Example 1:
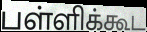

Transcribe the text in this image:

பள்ளிக்கூட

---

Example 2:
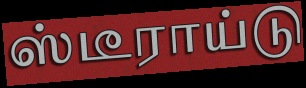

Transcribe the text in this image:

ஸ்டீராய்டு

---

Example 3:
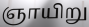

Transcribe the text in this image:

ஞாயிறு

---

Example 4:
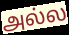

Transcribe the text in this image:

அல்ல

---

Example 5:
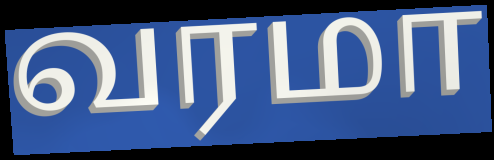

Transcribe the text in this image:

வரமா